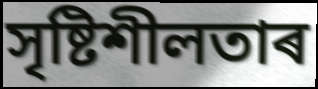
সৃষ্টিশীলতাৰ